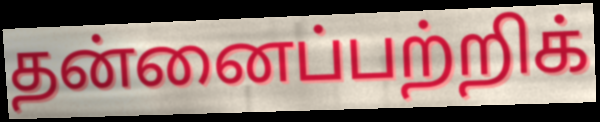
தன்னைப்பற்றிக்